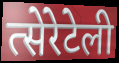
त्सेरेटेली